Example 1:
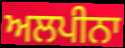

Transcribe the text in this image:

ਅਲਪੀਨਾ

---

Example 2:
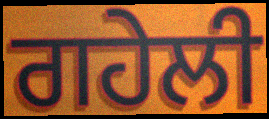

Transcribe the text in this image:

ਗਹੇਲੀ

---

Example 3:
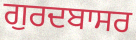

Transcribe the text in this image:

ਗੁਰਦਬਾਸਰ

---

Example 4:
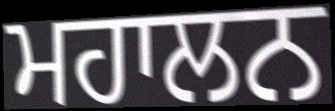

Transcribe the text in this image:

ਮਹਾਲਨ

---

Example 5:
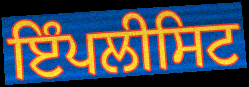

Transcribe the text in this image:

ਇੰਪਲੀਸਿਟ